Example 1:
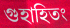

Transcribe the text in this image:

গুহাহিতং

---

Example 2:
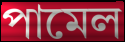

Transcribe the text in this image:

পামেল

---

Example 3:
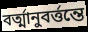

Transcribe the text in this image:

বর্ত্মানুবর্ত্তন্তে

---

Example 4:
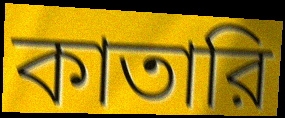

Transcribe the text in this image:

কাতারি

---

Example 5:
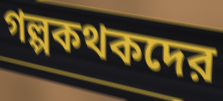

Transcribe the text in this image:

গল্পকথকদের